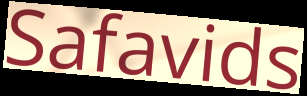
Safavids